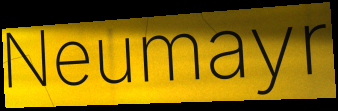
Neumayr